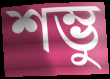
শম্ভু